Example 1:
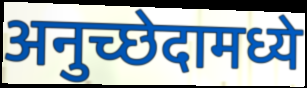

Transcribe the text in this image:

अनुच्छेदामध्ये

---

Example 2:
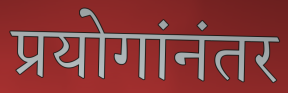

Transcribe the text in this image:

प्रयोगांनंतर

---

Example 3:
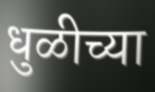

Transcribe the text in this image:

धुळीच्या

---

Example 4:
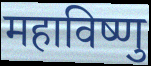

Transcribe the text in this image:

महाविष्णु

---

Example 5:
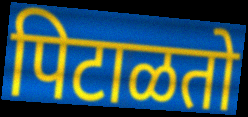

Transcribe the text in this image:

पिटाळतो